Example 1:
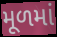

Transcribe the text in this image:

મૂળમાં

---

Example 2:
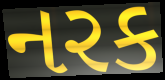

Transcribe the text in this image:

નરક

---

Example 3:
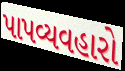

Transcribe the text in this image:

પાપવ્યવહારો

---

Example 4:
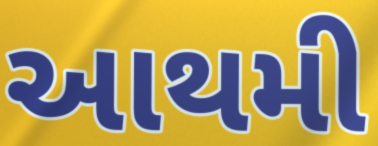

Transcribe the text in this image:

આથમી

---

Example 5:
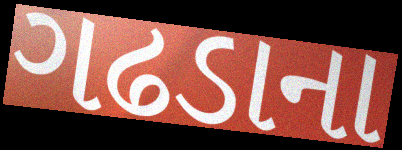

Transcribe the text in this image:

ગઢડાના